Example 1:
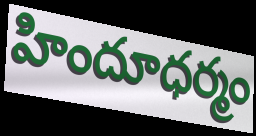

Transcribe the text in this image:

హిందూధర్మం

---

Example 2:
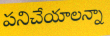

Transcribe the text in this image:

పనిచేయాలన్నా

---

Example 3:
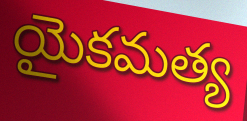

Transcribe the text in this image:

యైకమత్య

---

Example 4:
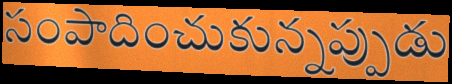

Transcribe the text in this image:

సంపాదించుకున్నప్పుడు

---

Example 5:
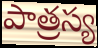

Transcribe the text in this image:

పాత్రస్య